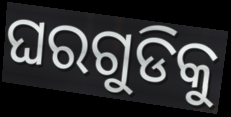
ଘରଗୁଡିକୁ